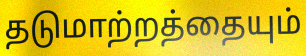
தடுமாற்றத்தையும்